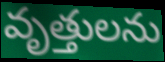
వృత్తులను